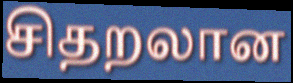
சிதறலான